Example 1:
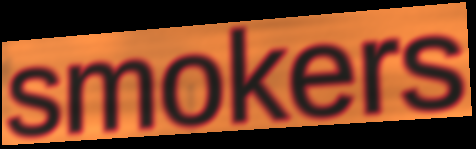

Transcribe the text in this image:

smokers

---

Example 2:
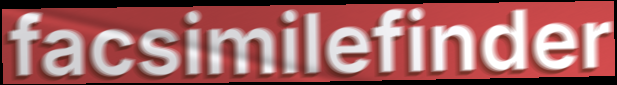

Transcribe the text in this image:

facsimilefinder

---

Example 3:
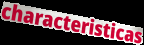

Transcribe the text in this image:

characteristicas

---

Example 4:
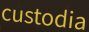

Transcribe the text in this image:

custodia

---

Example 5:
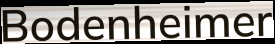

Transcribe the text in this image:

Bodenheimer